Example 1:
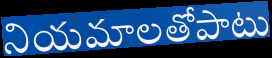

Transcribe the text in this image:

నియమాలతోపాటు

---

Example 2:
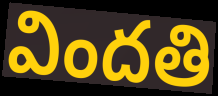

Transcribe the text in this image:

విందతి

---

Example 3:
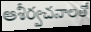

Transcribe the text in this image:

ఆశీర్వచనాలతో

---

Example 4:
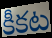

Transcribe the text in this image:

కీకట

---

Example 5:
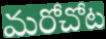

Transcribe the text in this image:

మరోచోట